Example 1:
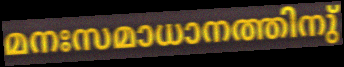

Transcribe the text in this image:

മനഃസമാധാനത്തിനു്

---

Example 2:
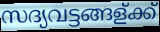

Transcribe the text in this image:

സദ്യവട്ടങ്ങള്ക്ക്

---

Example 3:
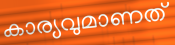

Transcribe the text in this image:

കാര്യവുമാണത്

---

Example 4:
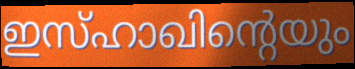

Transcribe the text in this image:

ഇസ്ഹാഖിന്റെയും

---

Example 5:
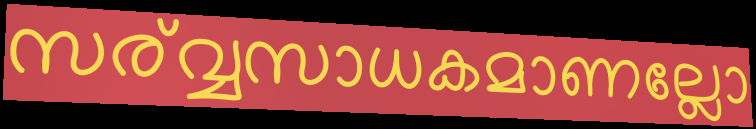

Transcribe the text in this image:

സര്വ്വസാധകമാണല്ലോ